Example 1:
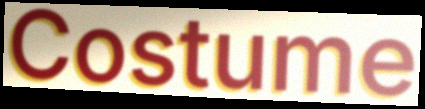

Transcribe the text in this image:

Costume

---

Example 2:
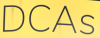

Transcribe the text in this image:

DCAs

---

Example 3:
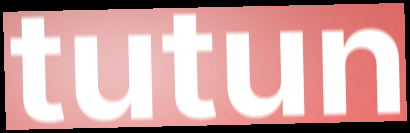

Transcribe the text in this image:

tutun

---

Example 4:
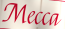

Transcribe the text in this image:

Mecca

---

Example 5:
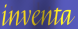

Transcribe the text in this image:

inventa